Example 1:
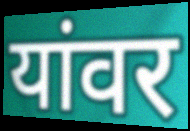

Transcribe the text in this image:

यांवर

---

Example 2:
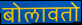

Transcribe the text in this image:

बोलावतो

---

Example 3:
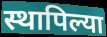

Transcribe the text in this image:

स्थापिल्या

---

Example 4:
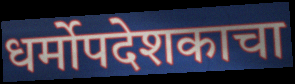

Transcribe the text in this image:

धर्मोपदेशकाचा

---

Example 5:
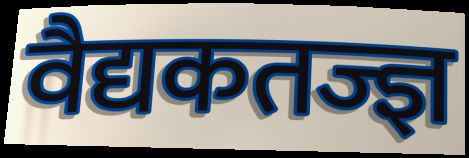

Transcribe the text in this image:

वैद्यकतज्ज्ञ